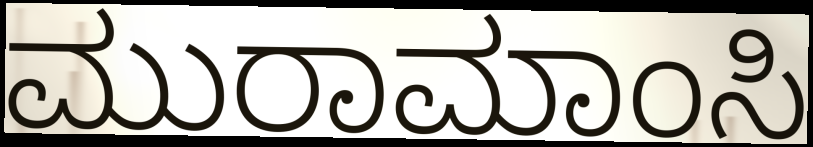
ಮುರಾಮಾಂಸಿ